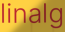
linalg